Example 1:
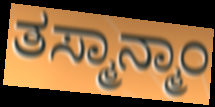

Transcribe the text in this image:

ತಸ್ಮಾನ್ಮಾಂ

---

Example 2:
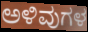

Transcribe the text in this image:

ಅಳಿವುಗಳ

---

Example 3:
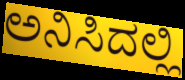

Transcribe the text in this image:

ಅನಿಸಿದಲ್ಲಿ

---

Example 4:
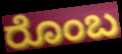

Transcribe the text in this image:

ರೊಂಬ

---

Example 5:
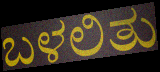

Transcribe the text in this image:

ಬಳಲಿತು